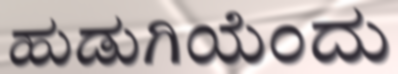
ಹುಡುಗಿಯೆಂದು